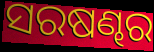
ସରଷଣ୍ଢର